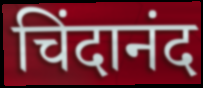
चिंदानंद